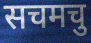
सचमचु